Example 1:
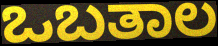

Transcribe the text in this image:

ಒಬತಾಲ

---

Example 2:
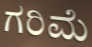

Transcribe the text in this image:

ಗರಿಮೆ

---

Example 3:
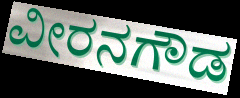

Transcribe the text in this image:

ವೀರನಗೌಡ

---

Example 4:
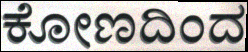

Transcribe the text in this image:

ಕೋಣದಿಂದ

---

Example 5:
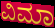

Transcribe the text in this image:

ವಿಮಾ